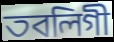
তবলিগী